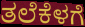
ತಲೆಕೆಳಗೆ